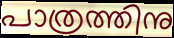
പാത്രത്തിനു